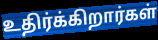
உதிர்க்கிறார்கள்